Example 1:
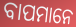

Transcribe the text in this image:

ବାପମାନେ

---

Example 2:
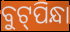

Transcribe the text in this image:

ବୁଟ୍‌ପିନ୍ଧା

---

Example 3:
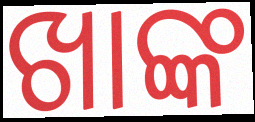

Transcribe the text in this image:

ଖାଙ୍କ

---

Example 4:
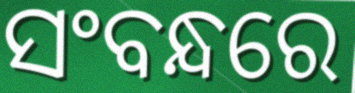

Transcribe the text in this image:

ସଂବନ୍ଧରେ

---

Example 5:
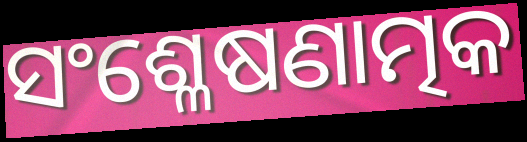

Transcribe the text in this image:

ସଂଶ୍ଳେଷଣାତ୍ମକ